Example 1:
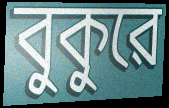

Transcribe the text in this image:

বুকুৱে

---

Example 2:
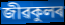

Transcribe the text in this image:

জীৱকুলৰ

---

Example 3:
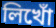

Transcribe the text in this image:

লিখোঁ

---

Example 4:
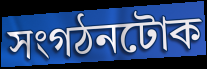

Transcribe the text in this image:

সংগঠনটোক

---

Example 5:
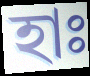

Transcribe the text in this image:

হাঃ